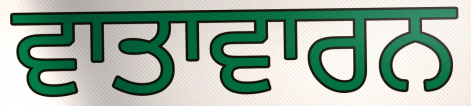
ਵਾਤਾਵਾਰਨ